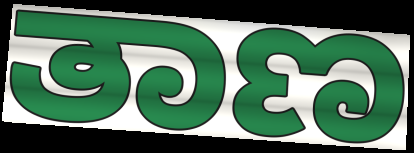
ತಾಣ